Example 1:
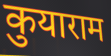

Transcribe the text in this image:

कुयाराम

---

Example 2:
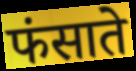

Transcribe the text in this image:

फंसाते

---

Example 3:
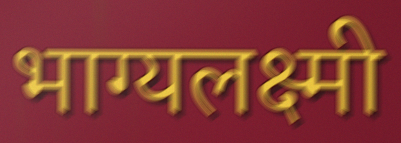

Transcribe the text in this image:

भाग्यलक्ष्मी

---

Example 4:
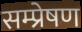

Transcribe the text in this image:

सम्प्रेषण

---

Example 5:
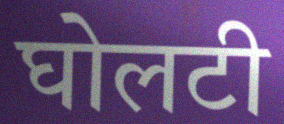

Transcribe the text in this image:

घोलटी